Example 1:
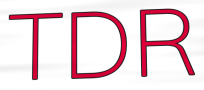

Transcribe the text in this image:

TDR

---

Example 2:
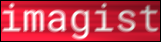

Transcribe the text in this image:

imagist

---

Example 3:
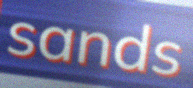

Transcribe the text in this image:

sands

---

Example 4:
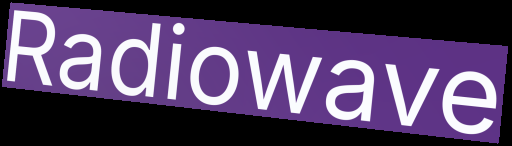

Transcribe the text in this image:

Radiowave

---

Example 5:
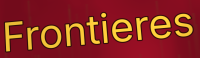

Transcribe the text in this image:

Frontieres